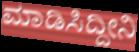
ಮಾಡಿಸಿದ್ದೀನಿ